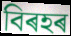
বিৰহৰ